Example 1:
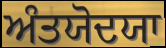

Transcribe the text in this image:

ਅੰਤਯੋਦਯਾ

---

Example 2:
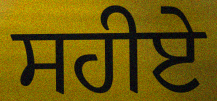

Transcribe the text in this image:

ਸਹੀਏ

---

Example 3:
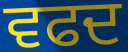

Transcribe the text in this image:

ਵਫਦ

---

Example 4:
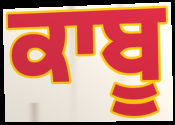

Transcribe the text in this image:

ਕਾਬੂ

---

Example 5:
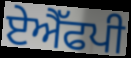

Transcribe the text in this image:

ਏਐੱਫਪੀ